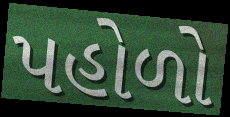
પહોળો